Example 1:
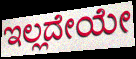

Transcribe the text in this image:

ಇಲ್ಲದೇಯೇ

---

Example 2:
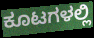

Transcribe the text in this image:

ಕೂಟಗಳಲ್ಲಿ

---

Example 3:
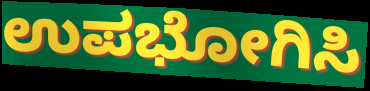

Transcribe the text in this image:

ಉಪಭೋಗಿಸಿ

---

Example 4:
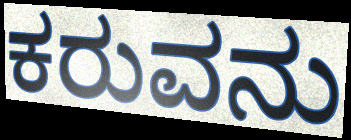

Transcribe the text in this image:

ಕರುವನು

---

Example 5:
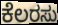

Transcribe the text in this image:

ಕೆಲರಸು